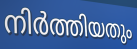
നിർത്തിയതും